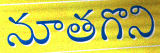
నూతగొని